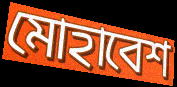
মোহাবেশ